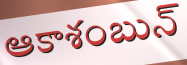
ఆకాశంబున్